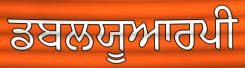
ਡਬਲਯੂਆਰਪੀ